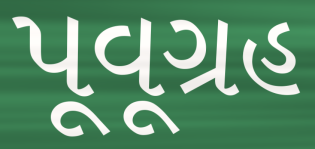
પૂવૂગ્રહ